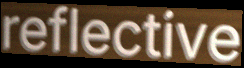
reflective